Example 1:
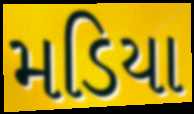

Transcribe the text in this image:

મડિયા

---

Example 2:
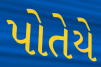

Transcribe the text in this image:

પોતેયે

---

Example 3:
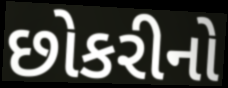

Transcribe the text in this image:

છોકરીનો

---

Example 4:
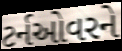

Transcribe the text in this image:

ટર્નઓવરને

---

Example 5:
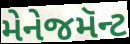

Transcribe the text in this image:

મેનેજમૅન્ટ